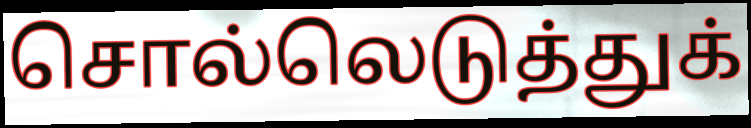
சொல்லெடுத்துக்